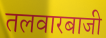
तलवारबाजी